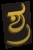
ಶ್ರ